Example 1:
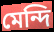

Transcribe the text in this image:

মেন্দি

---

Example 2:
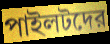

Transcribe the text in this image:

পাইলটদের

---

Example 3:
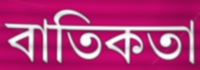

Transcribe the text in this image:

বাতিকতা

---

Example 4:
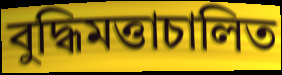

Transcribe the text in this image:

বুদ্ধিমত্তাচালিত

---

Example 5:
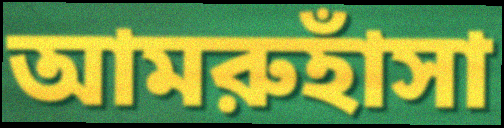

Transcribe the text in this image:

আমরুহাঁসা